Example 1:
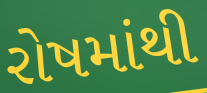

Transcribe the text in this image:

રોષમાંથી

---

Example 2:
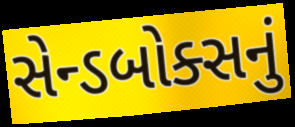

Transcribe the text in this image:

સેન્ડબોક્સનું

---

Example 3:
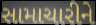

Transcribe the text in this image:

સામાચારીને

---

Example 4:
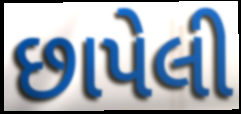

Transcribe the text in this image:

છાપેલી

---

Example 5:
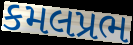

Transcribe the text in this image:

કમલપ્રભ